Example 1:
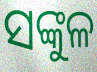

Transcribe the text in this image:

ସଙ୍କୁଳ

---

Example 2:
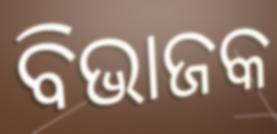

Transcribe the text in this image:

ବିଭାଜକ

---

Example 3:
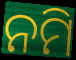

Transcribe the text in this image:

ନମି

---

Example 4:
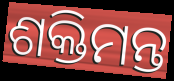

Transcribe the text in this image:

ଶକ୍ତିମନ୍ତ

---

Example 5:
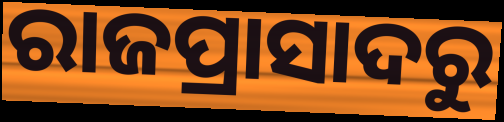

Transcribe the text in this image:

ରାଜପ୍ରାସାଦରୁ